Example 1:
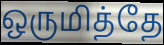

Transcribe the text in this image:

ஒருமித்தே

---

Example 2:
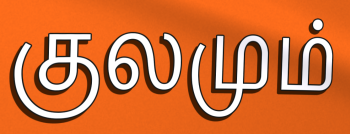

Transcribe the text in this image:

குலமும்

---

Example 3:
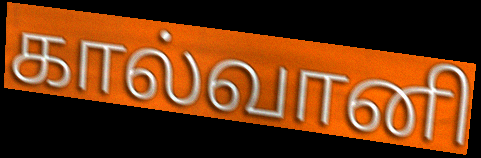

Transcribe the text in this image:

கால்வானி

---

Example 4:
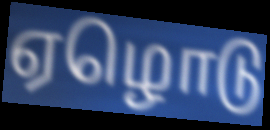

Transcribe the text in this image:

ஏழொடு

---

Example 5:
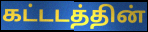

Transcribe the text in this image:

கட்டடத்தின்